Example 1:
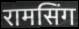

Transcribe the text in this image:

रामसिंग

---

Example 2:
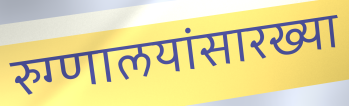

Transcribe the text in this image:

रुग्णालयांसारख्या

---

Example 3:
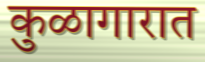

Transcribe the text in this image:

कुळागारात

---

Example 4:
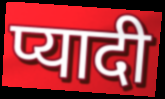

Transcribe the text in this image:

प्यादी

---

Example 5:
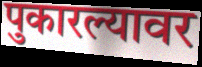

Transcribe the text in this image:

पुकारल्यावर